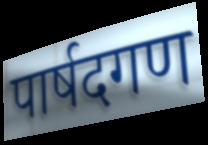
पार्षदगण